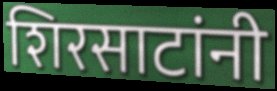
शिरसाटांनी